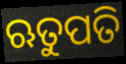
ଋତୁପତି